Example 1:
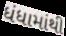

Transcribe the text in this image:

ધંધામાંથી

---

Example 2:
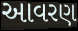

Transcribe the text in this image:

આવરણ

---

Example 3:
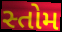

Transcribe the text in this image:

સ્તોમ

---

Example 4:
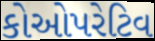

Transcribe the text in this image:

કોઓપરેટિવ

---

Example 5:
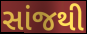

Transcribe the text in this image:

સાંજથી